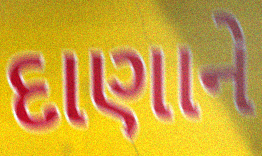
દાણાને